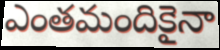
ఎంతమందికైనా